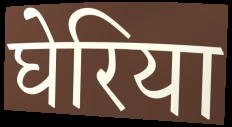
घेरिया